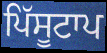
ਪਿੱਸੂਟਾਪ